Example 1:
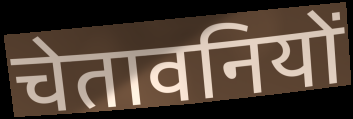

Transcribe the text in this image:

चेतावनियों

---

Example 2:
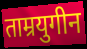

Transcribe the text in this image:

ताम्रयुगीन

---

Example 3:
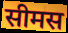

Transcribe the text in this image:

सीमस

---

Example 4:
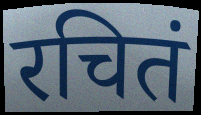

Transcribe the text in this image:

रचितं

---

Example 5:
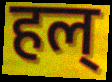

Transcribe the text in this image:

हल्